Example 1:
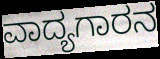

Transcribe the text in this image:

ವಾದ್ಯಗಾರನ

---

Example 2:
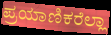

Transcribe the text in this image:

ಪ್ರಯಾಣಿಕರೆಲ್ಲಾ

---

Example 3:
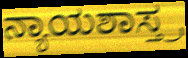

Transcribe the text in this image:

ನ್ಯಾಯಶಾಸ್ತ್ರ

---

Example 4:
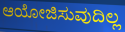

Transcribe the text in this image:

ಆಯೋಜಿಸುವುದಿಲ್ಲ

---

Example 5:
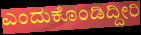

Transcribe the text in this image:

ಎಂದುಕೊಂಡಿದ್ದೀರಿ